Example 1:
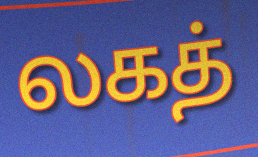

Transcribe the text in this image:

லகத்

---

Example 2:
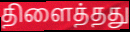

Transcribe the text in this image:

திளைத்தது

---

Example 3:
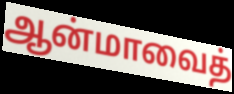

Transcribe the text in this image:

ஆன்மாவைத்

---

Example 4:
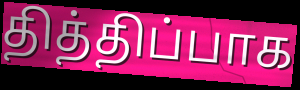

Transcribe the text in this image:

தித்திப்பாக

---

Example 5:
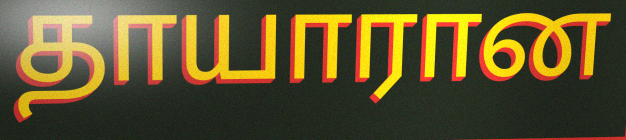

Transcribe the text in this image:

தாயாரான